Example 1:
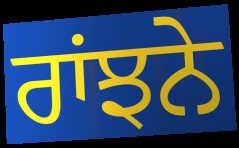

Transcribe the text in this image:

ਰਾਂਝਨੇ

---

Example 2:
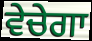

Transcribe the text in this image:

ਵੇਚੇਗਾ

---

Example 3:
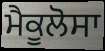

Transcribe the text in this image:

ਮੈਕੂਲੋਸਾ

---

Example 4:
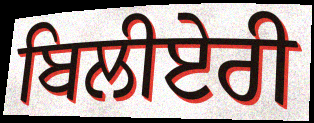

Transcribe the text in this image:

ਬਿਲੀਏਰੀ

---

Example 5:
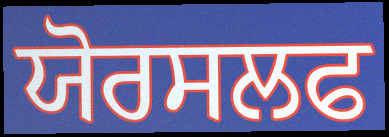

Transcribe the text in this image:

ਯੋਰਸਲਫ